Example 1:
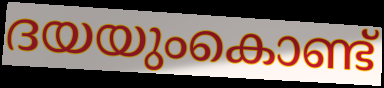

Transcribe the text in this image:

ദയയുംകൊണ്ട്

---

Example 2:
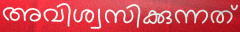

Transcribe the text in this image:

അവിശ്വസിക്കുന്നത്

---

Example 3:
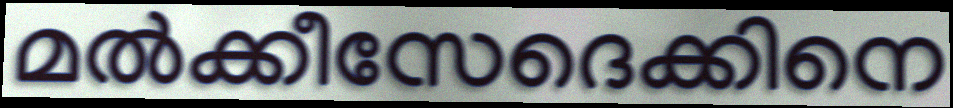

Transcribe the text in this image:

മൽക്കീസേദെക്കിനെ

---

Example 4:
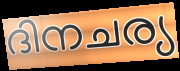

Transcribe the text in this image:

ദിനചര്യ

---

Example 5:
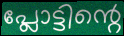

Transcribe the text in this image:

പ്ലോട്ടിന്റെ